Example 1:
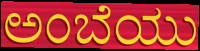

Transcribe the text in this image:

ಅಂಬೆಯು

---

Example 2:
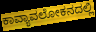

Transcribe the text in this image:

ಕಾವ್ಯಾವಲೋಕನದಲ್ಲಿ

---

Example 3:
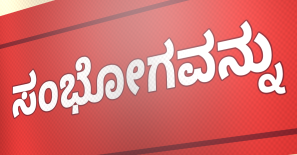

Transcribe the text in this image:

ಸಂಭೋಗವನ್ನು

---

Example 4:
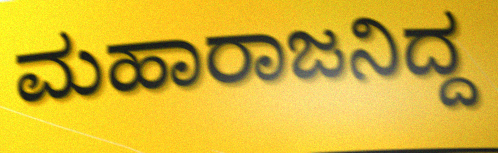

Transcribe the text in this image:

ಮಹಾರಾಜನಿದ್ದ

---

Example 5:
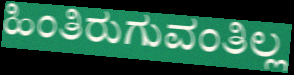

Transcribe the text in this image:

ಹಿಂತಿರುಗುವಂತಿಲ್ಲ